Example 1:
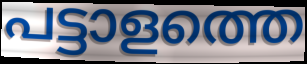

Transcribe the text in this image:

പട്ടാളത്തെ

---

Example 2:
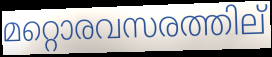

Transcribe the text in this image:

മറ്റൊരവസരത്തില്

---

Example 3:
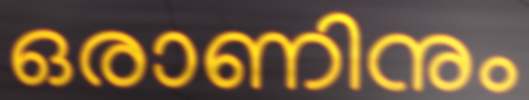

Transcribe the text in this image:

ഒരാണിനും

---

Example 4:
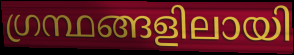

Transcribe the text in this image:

ഗ്രന്ഥങ്ങളിലായി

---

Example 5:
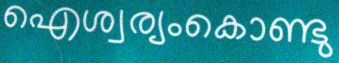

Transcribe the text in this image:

ഐശ്വര്യംകൊണ്ടു